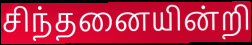
சிந்தனையின்றி